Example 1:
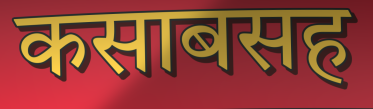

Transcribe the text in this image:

कसाबसह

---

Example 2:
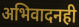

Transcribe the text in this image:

अभिवादनही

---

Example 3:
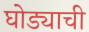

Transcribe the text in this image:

घोड्याची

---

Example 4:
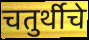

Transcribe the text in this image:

चतुर्थीचे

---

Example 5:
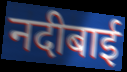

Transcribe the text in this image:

नदीबाई